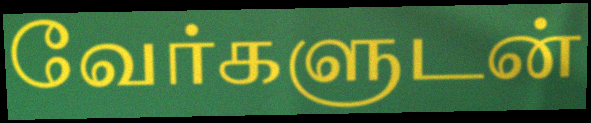
வேர்களுடன்